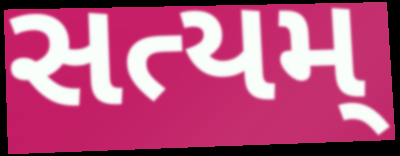
સત્યમ્